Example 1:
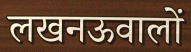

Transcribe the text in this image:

लखनऊवालों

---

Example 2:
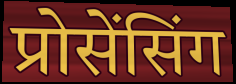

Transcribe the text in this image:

प्रोसेंसिंग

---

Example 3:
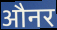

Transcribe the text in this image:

औनर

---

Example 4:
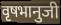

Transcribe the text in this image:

वृषभानुजी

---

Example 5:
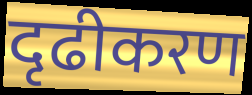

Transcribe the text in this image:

दृढीकरण